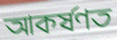
আকৰ্ষণত